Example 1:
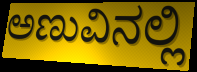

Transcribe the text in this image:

ಅಣುವಿನಲ್ಲಿ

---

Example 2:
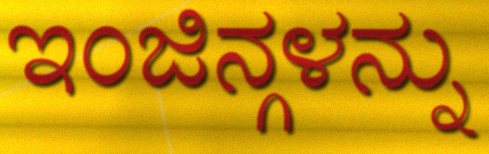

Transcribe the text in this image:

ಇಂಜಿನ್ಗಳನ್ನು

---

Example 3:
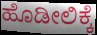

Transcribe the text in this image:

ಹೊಡೀಲಿಕ್ಕೆ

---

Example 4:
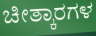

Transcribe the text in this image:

ಚೀತ್ಕಾರಗಳ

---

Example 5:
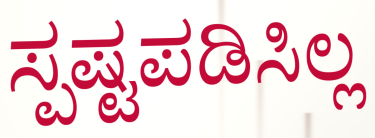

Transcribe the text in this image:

ಸ್ಪಷ್ಟಪಡಿಸಿಲ್ಲ